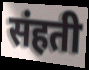
संहती